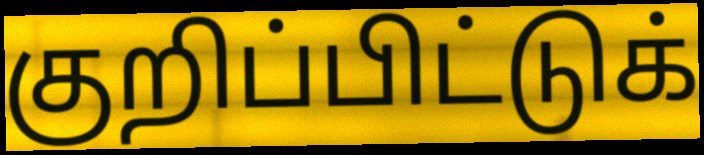
குறிப்பிட்டுக்